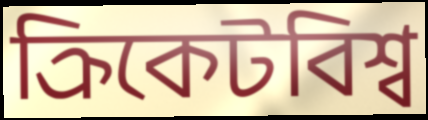
ক্রিকেটবিশ্ব